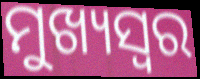
ମୁଖ୍ୟସ୍ୱର